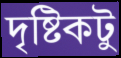
দৃষ্টিকটু